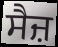
ਸੈਜ਼